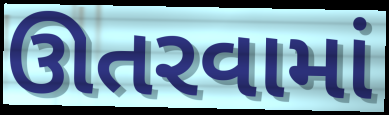
ઊતરવામાં